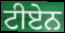
ਟੀਏਨ